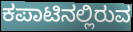
ಕಪಾಟಿನಲ್ಲಿರುವ